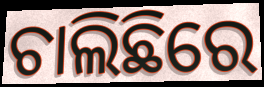
ଚାଲିଛିରେ